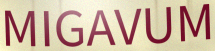
MIGAVUM